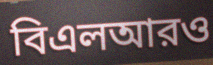
বিএলআরও